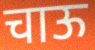
चाऊ